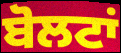
ਬੋਲਟਾਂ